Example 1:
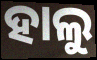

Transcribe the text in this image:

ହାଲୁ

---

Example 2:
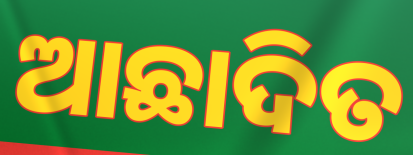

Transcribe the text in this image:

ଆଛାଦିତ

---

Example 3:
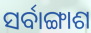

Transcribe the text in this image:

ସର୍ବାଙ୍ଗାଶ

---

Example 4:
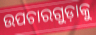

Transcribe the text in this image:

ଉପଚାରଗୁଡ଼ାକୁ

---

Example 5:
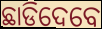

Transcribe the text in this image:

ଛାଡିଦେବେ